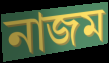
নাজম